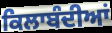
ਕਿਲਾਬੰਦੀਆਂ